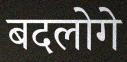
बदलोगे